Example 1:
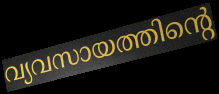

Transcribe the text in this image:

വ്യവസായത്തിന്റെ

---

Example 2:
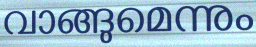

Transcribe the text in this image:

വാങ്ങുമെന്നും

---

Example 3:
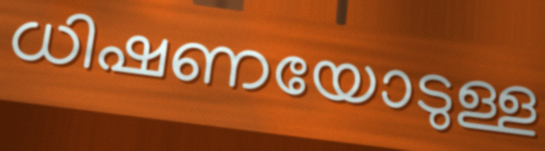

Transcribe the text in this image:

ധിഷണയോടുള്ള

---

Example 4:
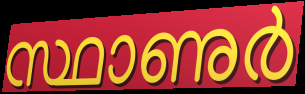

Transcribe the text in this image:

സ്ഥാണുർ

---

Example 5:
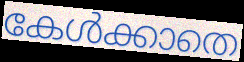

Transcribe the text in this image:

കേൾക്കാതെ